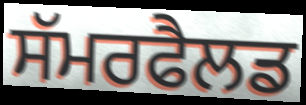
ਸੱਮਰਫੈਲਡ